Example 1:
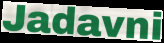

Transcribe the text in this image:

Jadavni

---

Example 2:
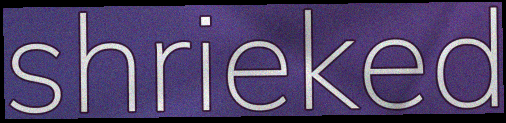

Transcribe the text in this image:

shrieked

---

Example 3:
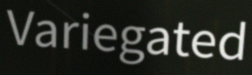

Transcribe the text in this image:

Variegated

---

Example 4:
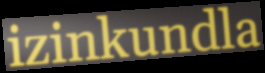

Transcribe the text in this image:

izinkundla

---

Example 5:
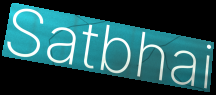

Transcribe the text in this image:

Satbhai